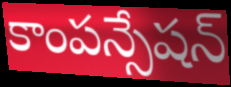
కాంపన్సేషన్